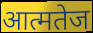
आत्मतेज